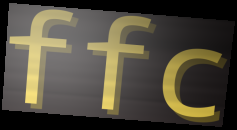
ffc